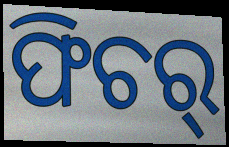
ଫିଚର୍